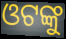
ଓଟଙ୍କୁ